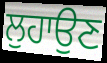
ਲੁਹਾਉਣ